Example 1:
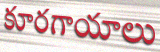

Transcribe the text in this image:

కూరగాయాలు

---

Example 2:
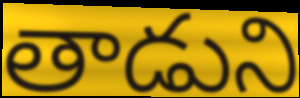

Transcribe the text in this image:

తాడుని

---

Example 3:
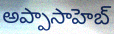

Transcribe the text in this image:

అప్పాసాహెబ్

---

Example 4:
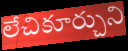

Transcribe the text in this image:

లేచికూర్చుని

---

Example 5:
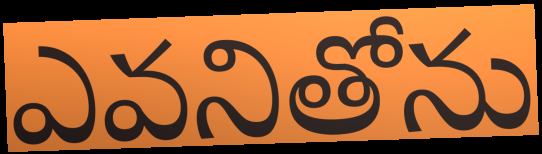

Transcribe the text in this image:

ఎవనితోను